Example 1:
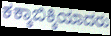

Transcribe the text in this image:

ಕಕ್ಕಾಬಿಕ್ಕಿಯಾದರು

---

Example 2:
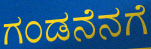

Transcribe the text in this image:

ಗಂಡನೆನಗೆ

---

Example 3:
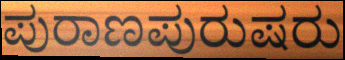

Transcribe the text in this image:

ಪುರಾಣಪುರುಷರು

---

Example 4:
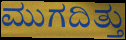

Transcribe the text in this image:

ಮುಗದಿತ್ತು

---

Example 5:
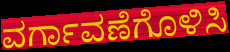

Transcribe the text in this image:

ವರ್ಗಾವಣೆಗೊಳಿಸಿ